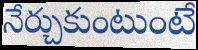
నేర్చుకుంటుంటే